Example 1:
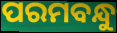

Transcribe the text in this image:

ପରମବନ୍ଧୁ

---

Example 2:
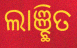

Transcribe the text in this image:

ଲାଞ୍ଛିତ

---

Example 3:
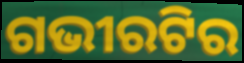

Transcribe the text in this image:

ଗଭୀରଟିର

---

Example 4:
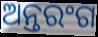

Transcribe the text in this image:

ଅନ୍ତରଂଗ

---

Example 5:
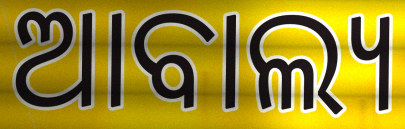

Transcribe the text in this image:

ଆବାଲ୍ୟ